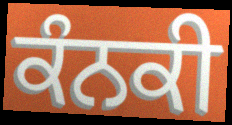
ਕੰਨਕੀ